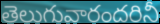
తెలుగువారందరినీ